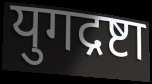
युगद्रष्टा